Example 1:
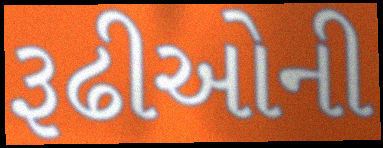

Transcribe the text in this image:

રૂઢીઓની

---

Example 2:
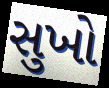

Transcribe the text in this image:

સુખો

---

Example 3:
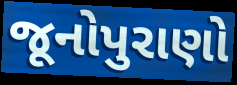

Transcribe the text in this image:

જૂનોપુરાણો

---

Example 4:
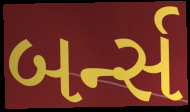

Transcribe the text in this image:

બર્ન્સ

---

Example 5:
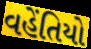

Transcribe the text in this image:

વહેંતિયો